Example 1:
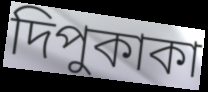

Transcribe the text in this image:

দিপুকাকা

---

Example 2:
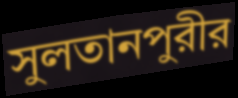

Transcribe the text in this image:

সুলতানপুরীর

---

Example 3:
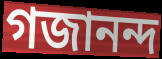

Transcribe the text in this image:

গজানন্দ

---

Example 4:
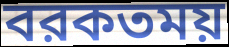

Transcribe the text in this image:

বরকতময়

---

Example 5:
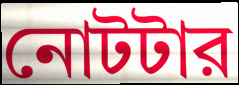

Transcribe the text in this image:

নোটটার